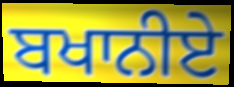
ਬਖਾਨੀਏ